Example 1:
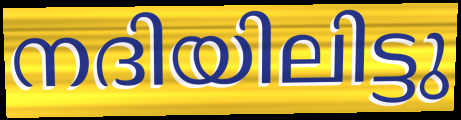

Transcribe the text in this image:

നദിയിലിട്ടു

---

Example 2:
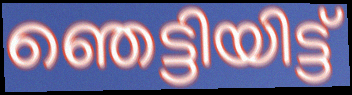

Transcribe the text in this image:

ഞെട്ടിയിട്ട്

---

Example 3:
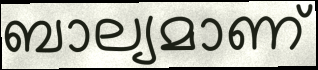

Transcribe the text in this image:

ബാല്യമാണ്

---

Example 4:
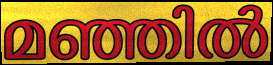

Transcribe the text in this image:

മഞ്ഞിൽ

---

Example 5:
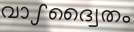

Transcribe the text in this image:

വാഽദ്വൈതം